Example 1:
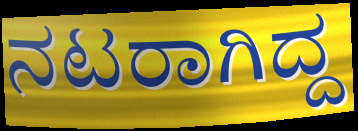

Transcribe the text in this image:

ನಟರಾಗಿದ್ದ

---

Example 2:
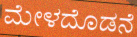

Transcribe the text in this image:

ಮೇಳದೊಡನೆ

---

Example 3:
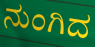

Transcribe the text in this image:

ನುಂಗಿದ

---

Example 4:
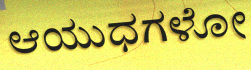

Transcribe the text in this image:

ಆಯುಧಗಳೋ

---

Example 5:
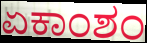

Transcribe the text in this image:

ಏಕಾಂಶಂ